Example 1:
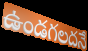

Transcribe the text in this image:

ఉండగలదనే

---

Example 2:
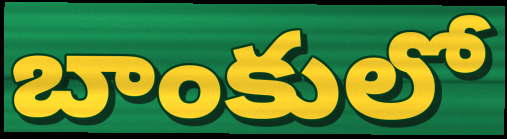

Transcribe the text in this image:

బాంకులో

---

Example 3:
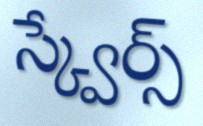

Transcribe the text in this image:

స్క్వేర్స్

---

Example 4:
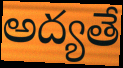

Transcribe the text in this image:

అద్యతే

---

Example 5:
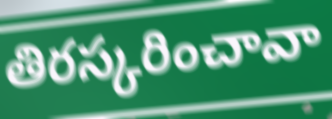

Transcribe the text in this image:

తిరస్కరించావా